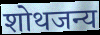
शोथजन्य